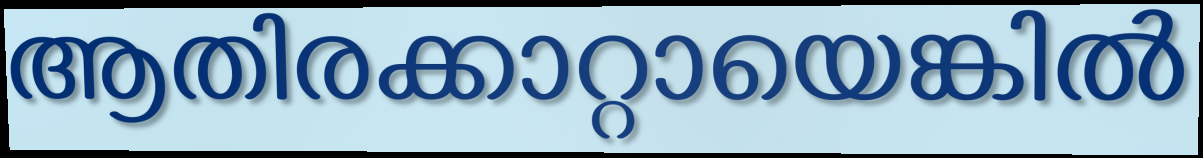
ആതിരക്കാറ്റായെങ്കിൽ